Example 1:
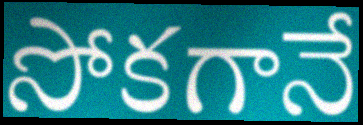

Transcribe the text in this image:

సోకగానే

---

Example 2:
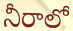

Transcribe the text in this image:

నీరాలో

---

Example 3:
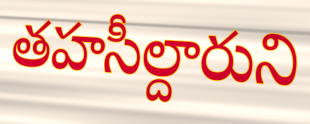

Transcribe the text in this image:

తహసీల్దారుని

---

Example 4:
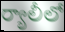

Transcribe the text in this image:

ర్యాలీలో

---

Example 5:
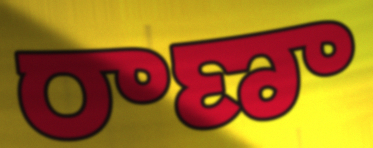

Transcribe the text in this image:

రాణా